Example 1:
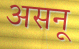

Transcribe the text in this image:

असनू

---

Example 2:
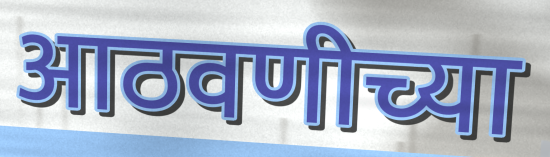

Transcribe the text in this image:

आठवणीच्या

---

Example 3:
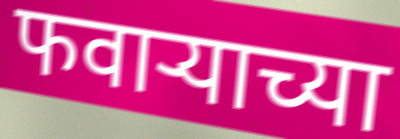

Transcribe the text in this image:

फवाऱ्याच्या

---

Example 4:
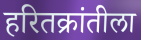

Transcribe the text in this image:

हरितक्रांतीला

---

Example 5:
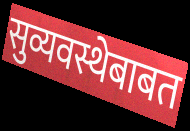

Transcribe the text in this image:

सुव्यवस्थेबाबत